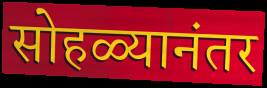
सोहळ्यानंतर